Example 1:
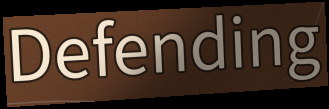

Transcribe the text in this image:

Defending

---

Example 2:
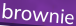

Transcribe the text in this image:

brownie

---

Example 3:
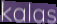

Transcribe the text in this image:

kalas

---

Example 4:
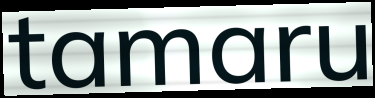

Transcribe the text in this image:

tamaru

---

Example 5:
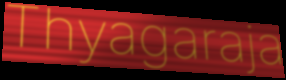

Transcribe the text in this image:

Thyagaraja